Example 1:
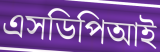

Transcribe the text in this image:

এসডিপিআই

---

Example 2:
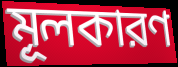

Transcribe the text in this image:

মূলকারণ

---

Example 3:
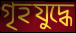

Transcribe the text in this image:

গৃহযুদ্ধে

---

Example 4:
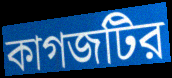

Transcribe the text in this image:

কাগজটির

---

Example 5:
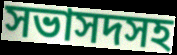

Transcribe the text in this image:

সভাসদসহ